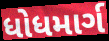
ધોધમાર્ગ